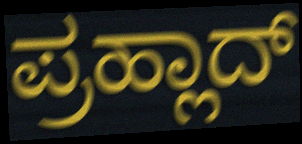
ಪ್ರಹ್ಲಾದ್